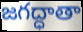
జగద్ధాతా